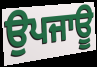
ਉਪਜਾਊ